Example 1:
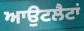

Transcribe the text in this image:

ਆਉਟਲੈਟਾਂ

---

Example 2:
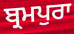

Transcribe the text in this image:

ਬ੍ਰਮਪੁਰਾ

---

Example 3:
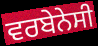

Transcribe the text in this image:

ਵਰਬੇਨੇਸੀ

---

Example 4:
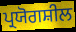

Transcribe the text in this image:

ਪ੍ਰਯੋਗਸ਼ੀਲ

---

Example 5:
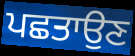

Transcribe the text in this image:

ਪਛਤਾਉਣ